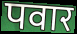
पवार